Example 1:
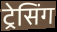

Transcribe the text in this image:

ट्रेसिंग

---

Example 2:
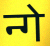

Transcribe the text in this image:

न्गे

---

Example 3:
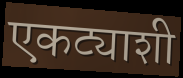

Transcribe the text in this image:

एकट्याशी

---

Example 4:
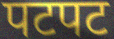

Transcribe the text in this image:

पटपट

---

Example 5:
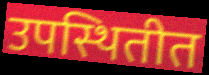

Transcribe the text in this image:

उपस्थितीत